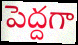
పెద్దగా